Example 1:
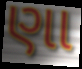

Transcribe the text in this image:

ણા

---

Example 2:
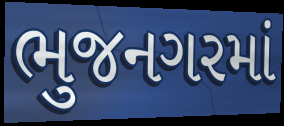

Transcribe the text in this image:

ભુજનગરમાં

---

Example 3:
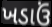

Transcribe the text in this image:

ખડાઉં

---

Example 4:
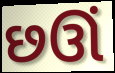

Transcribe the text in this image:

છઊં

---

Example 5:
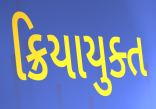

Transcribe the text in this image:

ક્રિયાયુક્ત